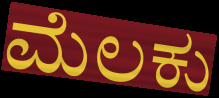
ಮೆಲಕು